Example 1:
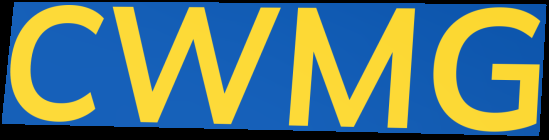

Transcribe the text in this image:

CWMG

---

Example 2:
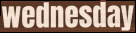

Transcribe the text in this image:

wednesday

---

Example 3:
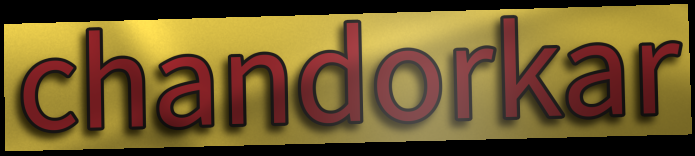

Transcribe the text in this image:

chandorkar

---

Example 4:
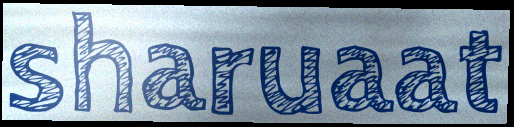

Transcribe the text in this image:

sharuaat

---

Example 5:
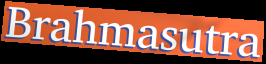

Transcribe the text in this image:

Brahmasutra